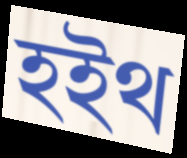
হইথ